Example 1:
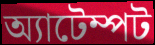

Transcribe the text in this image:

অ্যাটেম্পট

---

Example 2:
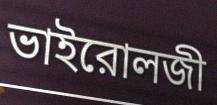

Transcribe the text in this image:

ভাইরোলজী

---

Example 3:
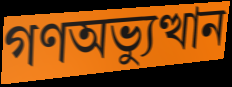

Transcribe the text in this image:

গণঅভ্যুত্থান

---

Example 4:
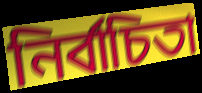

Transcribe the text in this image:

নির্বাচিতা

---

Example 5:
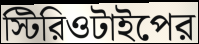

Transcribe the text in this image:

স্টিরিওটাইপের